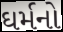
ઘર્મનો